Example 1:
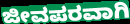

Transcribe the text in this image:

ಜೀವಪರವಾಗಿ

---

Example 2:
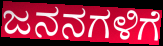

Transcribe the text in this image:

ಜನನಗಳಿಗೆ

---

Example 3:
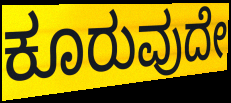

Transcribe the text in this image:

ಕೂರುವುದೇ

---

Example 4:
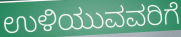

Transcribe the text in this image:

ಉಳಿಯುವವರಿಗೆ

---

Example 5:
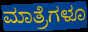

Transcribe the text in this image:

ಮಾತ್ರೆಗಳೂ